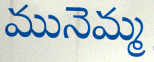
మునెమ్మ